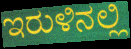
ಇರುಳಿನಲ್ಲಿ